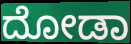
ದೋಡಾ